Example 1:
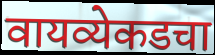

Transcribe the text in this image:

वायव्येकडचा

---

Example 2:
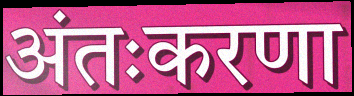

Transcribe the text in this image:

अंतःकरणा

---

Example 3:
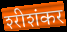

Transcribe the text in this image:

श्रीशंकर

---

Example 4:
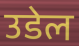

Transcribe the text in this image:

उडेल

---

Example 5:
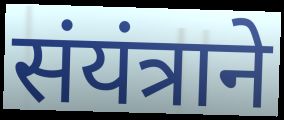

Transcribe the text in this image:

संयंत्राने